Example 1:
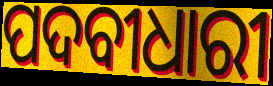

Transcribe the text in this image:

ପଦବୀଧାରୀ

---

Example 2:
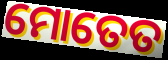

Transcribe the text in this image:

ମୋତେତ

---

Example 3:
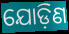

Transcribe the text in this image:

ଯୋଡ଼ିଣ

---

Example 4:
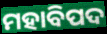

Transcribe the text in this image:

ମହାବିପଦ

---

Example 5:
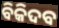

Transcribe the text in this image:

ବିକିଦବ